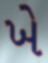
ખે